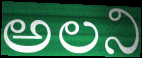
అలని